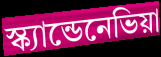
স্ক্যান্ডেনেভিয়া